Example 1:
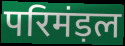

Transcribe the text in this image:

परिमंड़ल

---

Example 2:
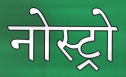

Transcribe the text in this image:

नोस्ट्रो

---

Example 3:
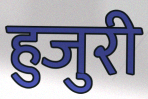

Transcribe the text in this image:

हुजुरी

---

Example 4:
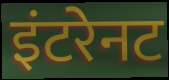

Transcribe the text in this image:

इंटरेनट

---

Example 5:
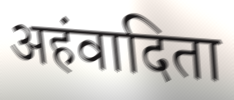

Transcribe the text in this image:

अहंवादिता